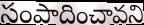
సంపాదించావని